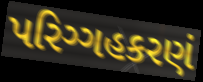
પરિગ્ગહકરણં